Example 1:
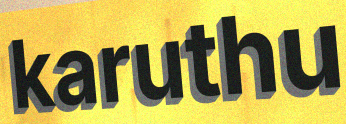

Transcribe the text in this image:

karuthu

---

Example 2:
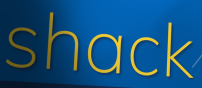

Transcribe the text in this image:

shack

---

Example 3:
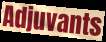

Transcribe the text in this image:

Adjuvants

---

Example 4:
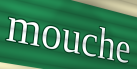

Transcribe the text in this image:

mouche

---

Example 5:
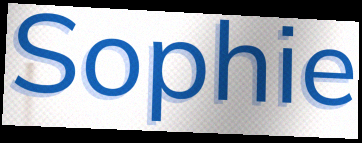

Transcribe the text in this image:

Sophie